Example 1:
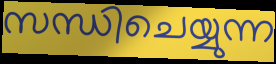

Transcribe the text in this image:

സന്ധിചെയ്യുന്ന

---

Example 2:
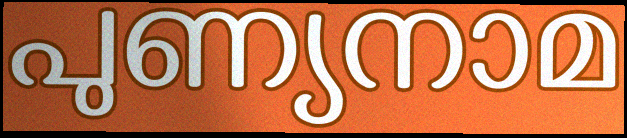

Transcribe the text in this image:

പുണ്യനാമ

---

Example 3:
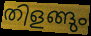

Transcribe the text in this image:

തിളങ്ങും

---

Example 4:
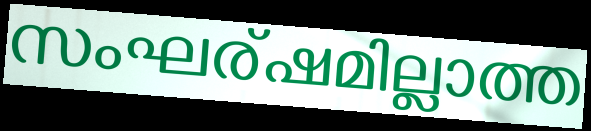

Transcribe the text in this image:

സംഘര്ഷമില്ലാത്ത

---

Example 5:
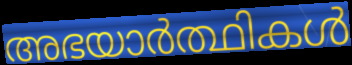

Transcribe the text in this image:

അഭയാർത്ഥികൾ